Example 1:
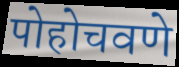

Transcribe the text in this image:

पोहोचवणे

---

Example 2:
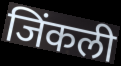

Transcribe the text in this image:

जिंकली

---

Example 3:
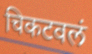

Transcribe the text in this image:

चिकटवलं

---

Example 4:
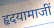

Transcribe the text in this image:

हृदयामाजीं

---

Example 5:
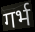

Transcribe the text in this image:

गर्भ